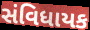
સંવિધાયક